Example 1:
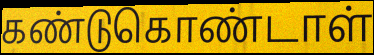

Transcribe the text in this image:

கண்டுகொண்டாள்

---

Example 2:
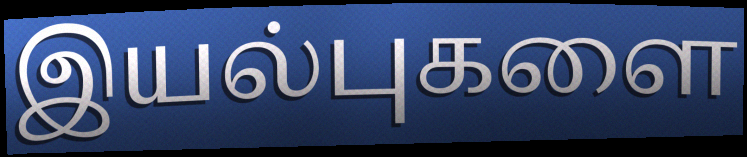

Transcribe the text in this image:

இயல்புகளை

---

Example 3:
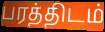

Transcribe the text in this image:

பரத்திடம்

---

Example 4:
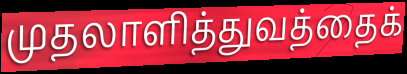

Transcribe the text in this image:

முதலாளித்துவத்தைக்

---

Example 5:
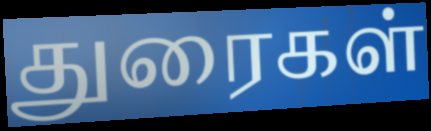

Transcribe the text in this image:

துரைகள்